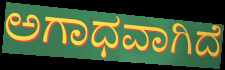
ಅಗಾಧವಾಗಿದೆ